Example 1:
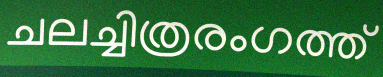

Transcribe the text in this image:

ചലച്ചിത്രരംഗത്ത്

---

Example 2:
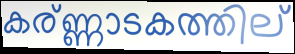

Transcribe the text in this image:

കര്ണ്ണാടകത്തില്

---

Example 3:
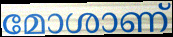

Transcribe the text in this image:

മോശാണ്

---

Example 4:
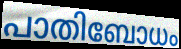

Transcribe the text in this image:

പാതിബോധം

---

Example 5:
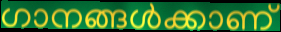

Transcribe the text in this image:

ഗാനങ്ങൾക്കാണ്